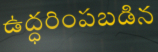
ఉద్ధరింపబడిన